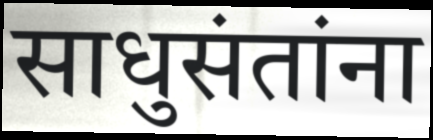
साधुसंतांना